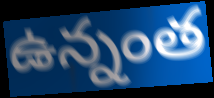
ఉన్నంత